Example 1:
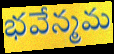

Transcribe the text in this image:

భవేన్మమ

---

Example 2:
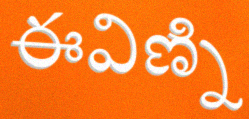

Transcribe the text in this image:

ఈవిణ్ని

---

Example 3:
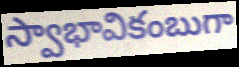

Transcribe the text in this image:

స్వాభావికంబుగా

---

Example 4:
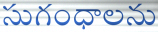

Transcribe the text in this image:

సుగంధాలను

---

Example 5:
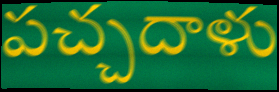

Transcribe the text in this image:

పచ్చదాళు